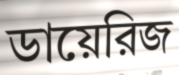
ডায়েরিজ